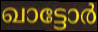
ഖാട്ടോർ